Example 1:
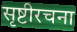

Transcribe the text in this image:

सृष्टीरचना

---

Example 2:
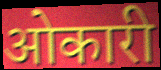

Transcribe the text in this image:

ओकारी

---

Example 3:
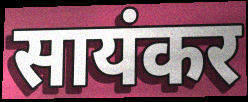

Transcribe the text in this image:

सायंकर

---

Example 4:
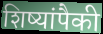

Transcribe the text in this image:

शिष्यांपैकी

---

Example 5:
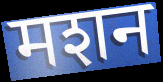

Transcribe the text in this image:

मशन